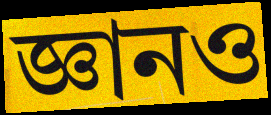
জ্ঞানও